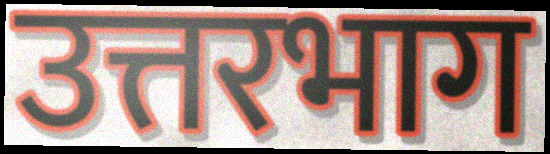
उत्तरभाग